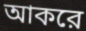
আকরে